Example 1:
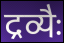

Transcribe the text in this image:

द्रव्यैः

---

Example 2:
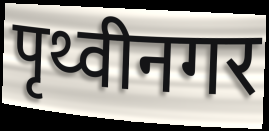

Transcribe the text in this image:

पृथ्वीनगर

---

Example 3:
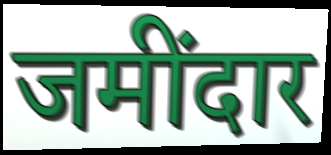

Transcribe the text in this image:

जमींदार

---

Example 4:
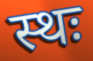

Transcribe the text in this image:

स्थः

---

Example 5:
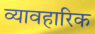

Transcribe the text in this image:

व्‍यावहारिक